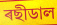
ৰছীডাল